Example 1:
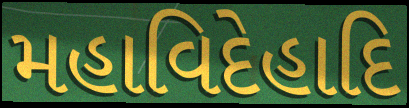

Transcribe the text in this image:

મહાવિદેહાદિ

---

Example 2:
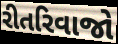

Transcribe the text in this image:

રીતરિવાજો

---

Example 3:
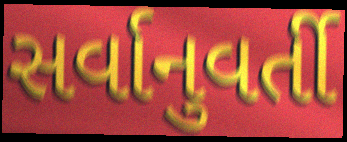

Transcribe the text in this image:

સર્વાનુવર્તી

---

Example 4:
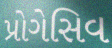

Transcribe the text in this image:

પ્રોગેસિવ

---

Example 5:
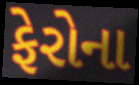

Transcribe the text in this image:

ફેરોના